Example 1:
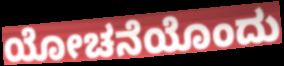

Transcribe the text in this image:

ಯೋಚನೆಯೊಂದು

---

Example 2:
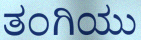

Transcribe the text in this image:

ತಂಗಿಯು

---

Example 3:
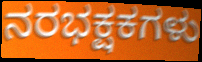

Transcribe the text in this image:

ನರಭಕ್ಷಕಗಳು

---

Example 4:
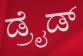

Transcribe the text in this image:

ಡ್ರೈಡ್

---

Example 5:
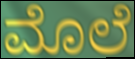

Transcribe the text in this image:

ಮೊಲೆ